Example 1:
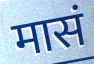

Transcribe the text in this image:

मासं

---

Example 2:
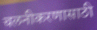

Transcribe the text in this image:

चलनीकरणासाठी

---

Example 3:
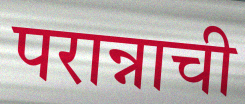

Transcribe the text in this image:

परान्नाची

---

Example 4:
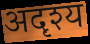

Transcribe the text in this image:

अदृश्य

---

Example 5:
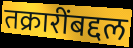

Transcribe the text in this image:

तक्रारींबद्दल